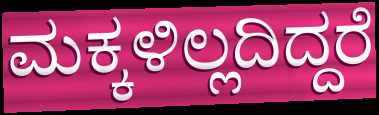
ಮಕ್ಕಳಿಲ್ಲದಿದ್ದರೆ